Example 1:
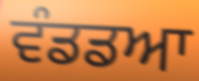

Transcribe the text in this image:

ਵੰਡਡਆ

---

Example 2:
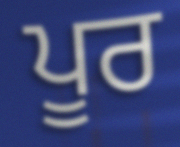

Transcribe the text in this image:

ਪੂਰ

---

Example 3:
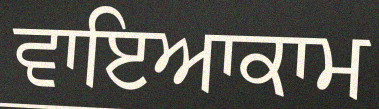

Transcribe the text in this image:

ਵਾਇਆਕਾਮ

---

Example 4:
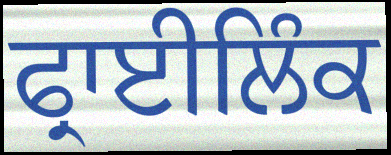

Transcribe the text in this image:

ਫ੍ਰਾਈਲਿੰਕ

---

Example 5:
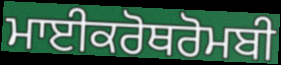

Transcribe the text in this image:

ਮਾਈਕਰੋਥਰੋਮਬੀ